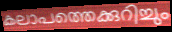
കലാപത്തെക്കുറിച്ചും